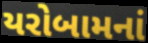
યરોબામનાં